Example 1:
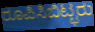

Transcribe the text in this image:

ರೂಪಿಸಿಬಿಟ್ಟರು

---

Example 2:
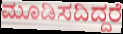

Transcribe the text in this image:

ಮೂಡಿಸದಿದ್ದರೆ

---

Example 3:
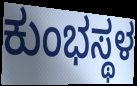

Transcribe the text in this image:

ಕುಂಭಸ್ಥಳ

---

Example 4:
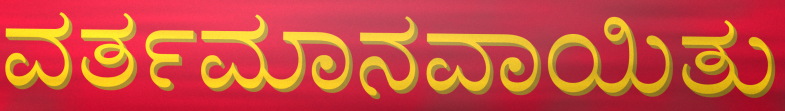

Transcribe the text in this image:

ವರ್ತಮಾನವಾಯಿತು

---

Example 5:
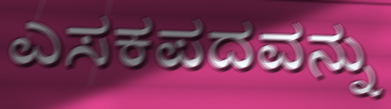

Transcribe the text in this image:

ಎಸಕಪದವನ್ನು